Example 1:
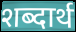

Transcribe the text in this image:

शब्दार्थ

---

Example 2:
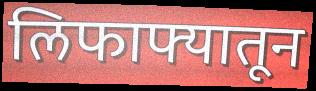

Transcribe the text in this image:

लिफाफ्यातून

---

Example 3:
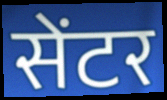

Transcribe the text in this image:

सेंटर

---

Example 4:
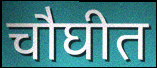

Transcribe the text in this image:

चौघीत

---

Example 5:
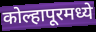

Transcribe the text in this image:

कोल्हापूरमध्ये